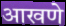
आखणे